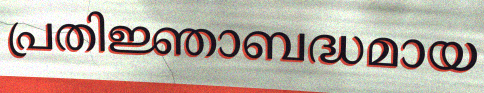
പ്രതിജ്ഞാബദ്ധമായ